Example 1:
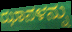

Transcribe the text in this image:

ಝಾನಳನ್ನು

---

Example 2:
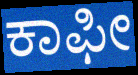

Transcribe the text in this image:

ಕಾಫೀ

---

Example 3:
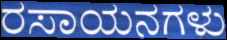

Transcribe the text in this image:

ರಸಾಯನಗಳು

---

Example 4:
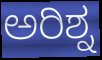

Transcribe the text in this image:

ಅರಿಶ್ನ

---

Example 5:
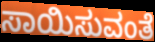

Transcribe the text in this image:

ಸಾಯಿಸುವಂತೆ